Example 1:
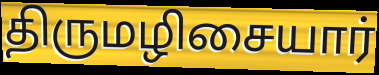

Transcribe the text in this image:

திருமழிசையார்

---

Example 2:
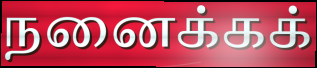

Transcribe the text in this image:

நனைக்கக்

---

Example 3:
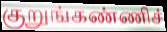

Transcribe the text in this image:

குறுங்கண்ணிச்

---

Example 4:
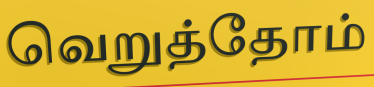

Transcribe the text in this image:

வெறுத்தோம்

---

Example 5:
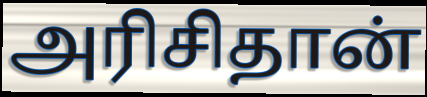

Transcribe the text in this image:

அரிசிதான்